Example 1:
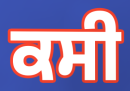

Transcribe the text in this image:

ਕਸੀ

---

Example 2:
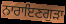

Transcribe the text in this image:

ਨਾਰਾਇਣਗੁੜਾ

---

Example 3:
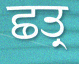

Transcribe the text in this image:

ਛਤ੍ਰ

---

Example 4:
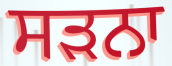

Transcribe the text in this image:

ਸੜਨਾ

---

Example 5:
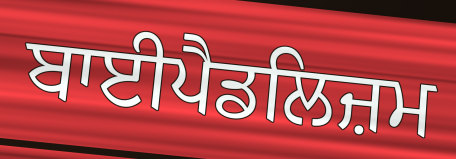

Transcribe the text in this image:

ਬਾਈਪੈਡਲਿਜ਼ਮ